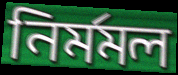
নির্মমল